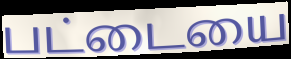
பட்டையை